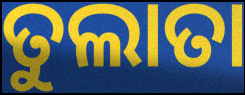
ତୁଲାତା